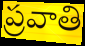
ప్రవాతి